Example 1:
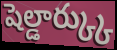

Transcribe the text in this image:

షెల్డార్క్కు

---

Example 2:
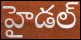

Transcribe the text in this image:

హైడల్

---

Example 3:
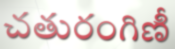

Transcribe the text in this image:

చతురంగిణీ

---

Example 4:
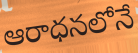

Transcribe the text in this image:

ఆరాధనలోనే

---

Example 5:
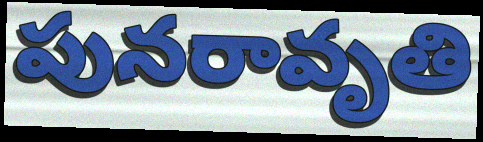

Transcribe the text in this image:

పునరావృతి